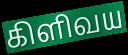
கிளிவய